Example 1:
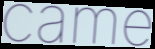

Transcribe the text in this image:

came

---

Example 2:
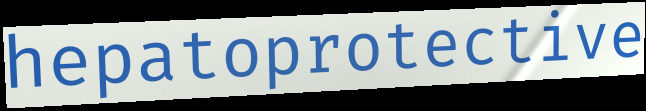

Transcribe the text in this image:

hepatoprotective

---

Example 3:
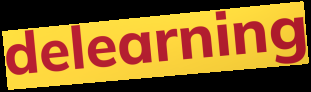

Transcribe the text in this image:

delearning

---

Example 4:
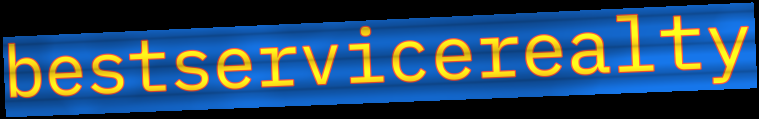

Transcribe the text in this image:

bestservicerealty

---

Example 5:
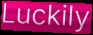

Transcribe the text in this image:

Luckily